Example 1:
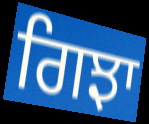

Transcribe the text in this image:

ਗਿਝਾ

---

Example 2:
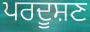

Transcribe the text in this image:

ਪਰਦੂਸ਼ਣ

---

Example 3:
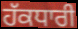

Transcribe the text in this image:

ਹੱਕਧਾਰੀ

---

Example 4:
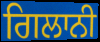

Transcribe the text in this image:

ਗਿਲਾਨੀ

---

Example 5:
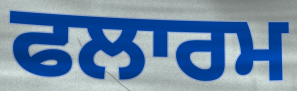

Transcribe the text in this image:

ਫਲਾਰਮ